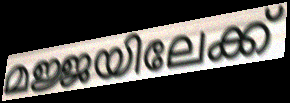
മജ്ജയിലേക്ക്